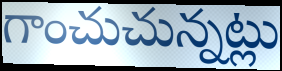
గాంచుచున్నట్లు